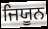
ਜਿਯੂਨ